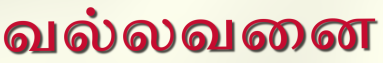
வல்லவனை